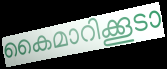
കൈമാറിക്കൂടാ